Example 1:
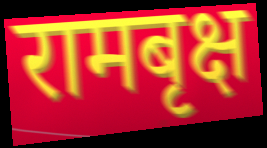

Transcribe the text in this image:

रामबृक्ष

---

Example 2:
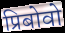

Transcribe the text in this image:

प्रिबोवो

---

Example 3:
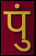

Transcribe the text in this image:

पुं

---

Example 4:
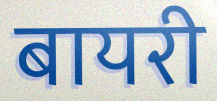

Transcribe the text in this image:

बायरी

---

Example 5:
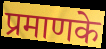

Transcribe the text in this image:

प्रमाणके